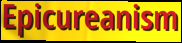
Epicureanism